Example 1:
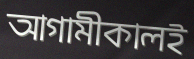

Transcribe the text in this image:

আগামীকালই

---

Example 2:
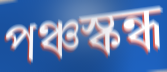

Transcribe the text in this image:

পঞ্চস্কন্ধ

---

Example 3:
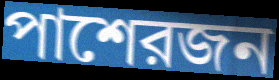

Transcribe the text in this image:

পাশেরজন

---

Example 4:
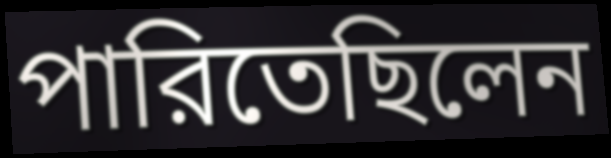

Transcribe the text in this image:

পারিতেছিলেন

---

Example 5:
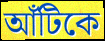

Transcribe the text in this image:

আঁটিকে